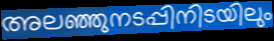
അലഞ്ഞുനടപ്പിനിടയിലും